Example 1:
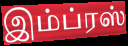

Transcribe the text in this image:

இம்ப்ரஸ்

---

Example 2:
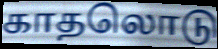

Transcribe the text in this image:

காதலொடு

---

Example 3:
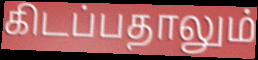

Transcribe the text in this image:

கிடப்பதாலும்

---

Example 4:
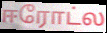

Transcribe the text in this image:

ஈரோட்ல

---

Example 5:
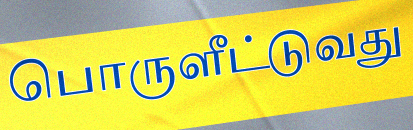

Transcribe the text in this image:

பொருளீட்டுவது